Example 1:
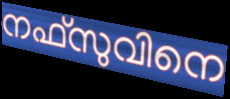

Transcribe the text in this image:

നഫ്സുവിനെ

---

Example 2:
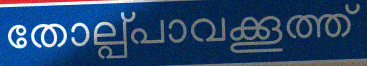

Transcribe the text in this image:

തോല്പ്പാവക്കൂത്ത്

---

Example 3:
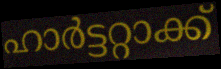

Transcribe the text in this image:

ഹാർട്ടറ്റാക്ക്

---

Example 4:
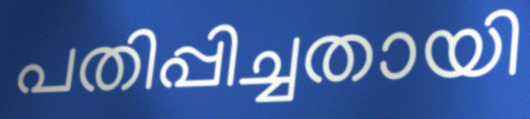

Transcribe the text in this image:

പതിപ്പിച്ചതായി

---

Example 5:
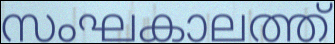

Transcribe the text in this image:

സംഘകാലത്ത്